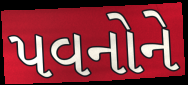
પવનોને